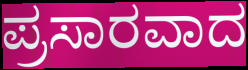
ಪ್ರಸಾರವಾದ